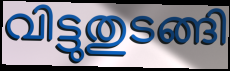
വിട്ടുതുടങ്ങി